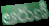
ఆరుణీ